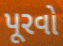
પૂરવો